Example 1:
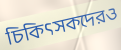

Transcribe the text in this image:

চিকিৎসকদেরও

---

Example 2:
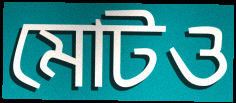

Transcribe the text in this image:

মোটও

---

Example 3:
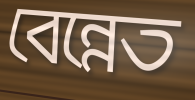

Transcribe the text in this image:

বেন্নেত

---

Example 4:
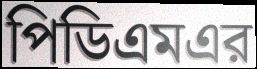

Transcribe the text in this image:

পিডিএমএর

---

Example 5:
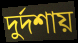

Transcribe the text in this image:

দুর্দশায়